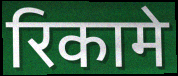
रिकामे